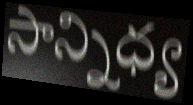
సాన్నిధ్య